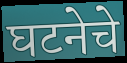
घटनेचे